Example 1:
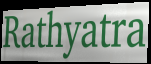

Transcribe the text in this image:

Rathyatra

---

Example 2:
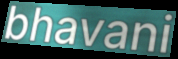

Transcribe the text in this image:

bhavani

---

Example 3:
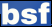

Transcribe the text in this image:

bsf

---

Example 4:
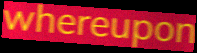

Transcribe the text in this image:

whereupon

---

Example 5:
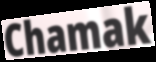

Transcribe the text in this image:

Chamak